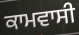
ਕਾਮਵਾਸੀ